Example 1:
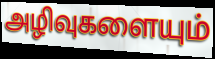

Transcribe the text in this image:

அழிவுகளையும்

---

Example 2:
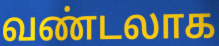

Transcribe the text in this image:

வண்டலாக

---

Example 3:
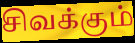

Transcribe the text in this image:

சிவக்கும்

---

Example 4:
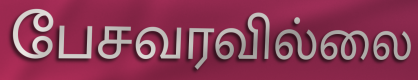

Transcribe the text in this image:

பேசவரவில்லை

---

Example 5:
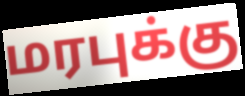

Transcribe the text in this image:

மரபுக்கு